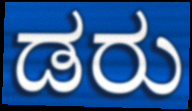
ಡರು